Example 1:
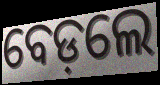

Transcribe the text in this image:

ବେଡ଼ଲେ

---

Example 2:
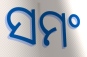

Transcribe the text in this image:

ସମଂ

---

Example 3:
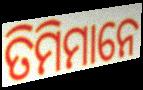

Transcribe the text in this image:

ତିମିମାନେ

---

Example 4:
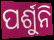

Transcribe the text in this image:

ପର୍ଶୁନି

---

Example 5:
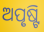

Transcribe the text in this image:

ଅପୃଷ୍ଟି